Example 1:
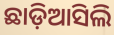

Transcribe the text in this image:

ଛାଡ଼ିଆସିଲି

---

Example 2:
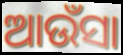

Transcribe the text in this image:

ଆଉଁସା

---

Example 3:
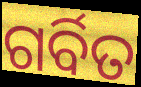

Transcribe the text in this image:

ଗର୍ବିତ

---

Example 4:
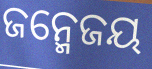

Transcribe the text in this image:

ଜନ୍ମେଜୟ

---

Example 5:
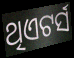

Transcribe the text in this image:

ଥିଏଟର୍ସ